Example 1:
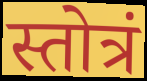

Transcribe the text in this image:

स्तोत्रं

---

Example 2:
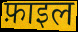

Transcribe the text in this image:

फ़ाइल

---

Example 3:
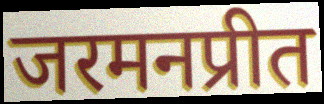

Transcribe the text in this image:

जरमनप्रीत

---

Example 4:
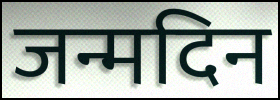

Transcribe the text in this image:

जन्‍मदिन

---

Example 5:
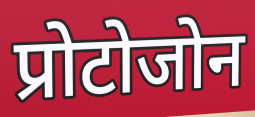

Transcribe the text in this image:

प्रोटोजोन